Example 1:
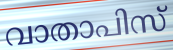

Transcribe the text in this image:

വാതാപിസ്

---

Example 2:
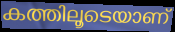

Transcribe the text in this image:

കത്തിലൂടെയാണ്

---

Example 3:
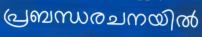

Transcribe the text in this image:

പ്രബന്ധരചനയിൽ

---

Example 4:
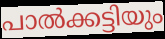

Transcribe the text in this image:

പാൽക്കട്ടിയും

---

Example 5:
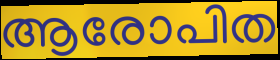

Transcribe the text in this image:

ആരോപിത